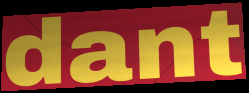
dant